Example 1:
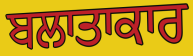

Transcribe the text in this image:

ਬਲਾਤਾਕਾਰ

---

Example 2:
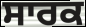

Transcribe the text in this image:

ਸਾਰਕ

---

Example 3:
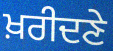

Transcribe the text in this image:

ਖ਼ਰੀਦਣੇ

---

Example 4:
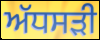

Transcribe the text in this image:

ਅੱਧਸੜੀ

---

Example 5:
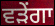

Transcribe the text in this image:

ਵੜੇਂਗਾ